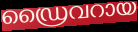
ഡ്രൈവറായ